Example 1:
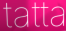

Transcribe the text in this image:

tatta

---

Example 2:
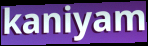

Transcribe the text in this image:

kaniyam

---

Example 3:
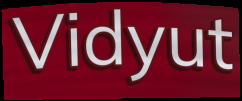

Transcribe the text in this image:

Vidyut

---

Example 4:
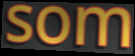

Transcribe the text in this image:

som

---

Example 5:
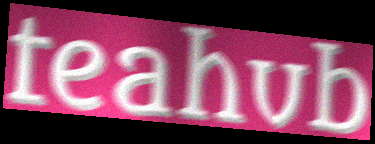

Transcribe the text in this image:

teahub